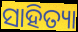
ସାହିତ୍ୟା